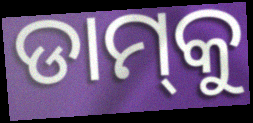
ଡାମ୍‍କୁ